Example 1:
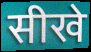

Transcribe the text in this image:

सीखे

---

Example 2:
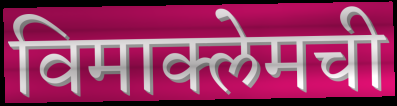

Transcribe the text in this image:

विमाक्लेमची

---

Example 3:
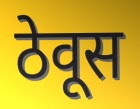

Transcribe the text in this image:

ठेवूस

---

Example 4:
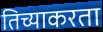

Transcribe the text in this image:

तिच्याकरता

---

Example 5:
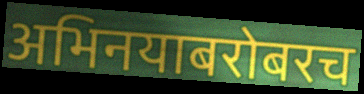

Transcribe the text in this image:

अभिनयाबरोबरच